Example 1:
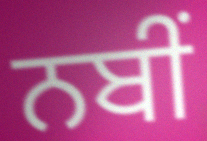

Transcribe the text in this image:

ਨਬੀਂ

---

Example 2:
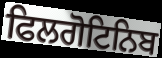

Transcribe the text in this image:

ਫਿਲਗੋਟਿਨਿਬ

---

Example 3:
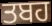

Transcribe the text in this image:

ਤਬਹ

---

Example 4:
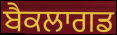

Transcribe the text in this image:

ਬੈਕਲਾਗਡ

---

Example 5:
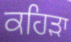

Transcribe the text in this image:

ਕਹਿੜਾ